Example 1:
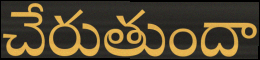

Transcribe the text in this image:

చేరుతుందా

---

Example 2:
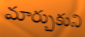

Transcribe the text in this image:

మార్చుకుని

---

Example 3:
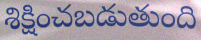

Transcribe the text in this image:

శిక్షించబడుతుంది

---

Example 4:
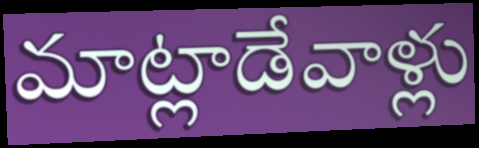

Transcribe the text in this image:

మాట్లాడేవాళ్లు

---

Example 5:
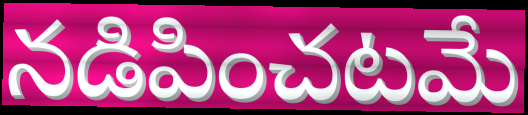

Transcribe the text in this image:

నడిపించటమే